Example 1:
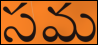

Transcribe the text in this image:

సమ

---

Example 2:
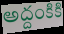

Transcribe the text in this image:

అద్దంకికి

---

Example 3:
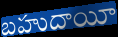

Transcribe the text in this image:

బహుదాయీ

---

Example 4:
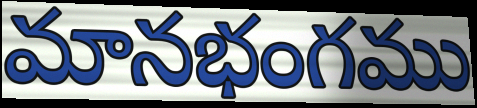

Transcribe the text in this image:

మానభంగము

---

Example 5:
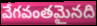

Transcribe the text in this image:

వేగవంతమైనది